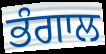
ਭੰਗਾਲ